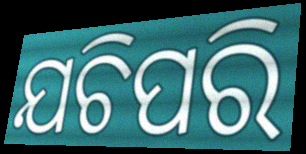
ଯଚିପରି